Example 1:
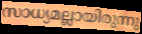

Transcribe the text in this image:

സാധ്യമല്ലായിരുന്നു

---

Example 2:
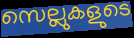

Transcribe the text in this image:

സെല്ലുകളുടെ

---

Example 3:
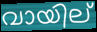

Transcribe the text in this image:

വായില്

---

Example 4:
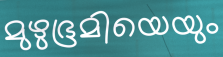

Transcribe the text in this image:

മുഴുഭൂമിയെയും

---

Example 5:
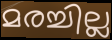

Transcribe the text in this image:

മരച്ചില്ല